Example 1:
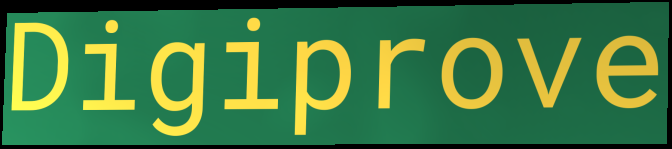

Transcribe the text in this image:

Digiprove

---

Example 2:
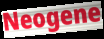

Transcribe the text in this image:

Neogene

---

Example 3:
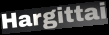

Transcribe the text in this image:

Hargittai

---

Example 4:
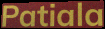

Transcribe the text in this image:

Patiala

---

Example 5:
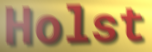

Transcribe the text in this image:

Holst